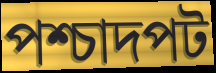
পশ্চাদপট